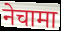
नेचामा